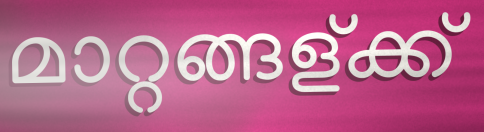
മാറ്റങ്ങള്ക്ക്